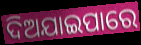
ଦିଅଯାଇପାରେ